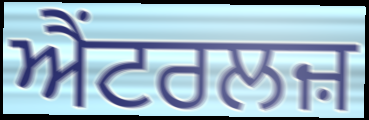
ਐਂਟਰਲਜ਼